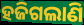
ହଜିଗଲାଣି